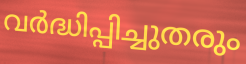
വർദ്ധിപ്പിച്ചുതരും